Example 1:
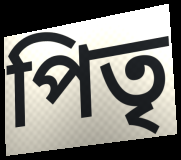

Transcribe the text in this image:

পিতৃ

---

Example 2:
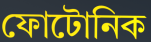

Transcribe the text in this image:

ফোটোনিক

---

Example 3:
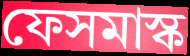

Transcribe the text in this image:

ফেসমাস্ক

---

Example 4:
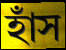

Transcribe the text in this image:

হাঁস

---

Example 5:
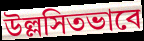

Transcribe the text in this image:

উল্লসিতভাবে